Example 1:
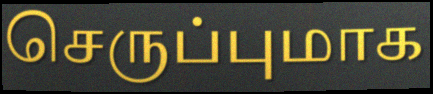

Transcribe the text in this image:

செருப்புமாக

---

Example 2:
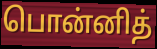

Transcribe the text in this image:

பொன்னித்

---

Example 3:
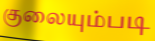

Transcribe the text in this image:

குலையும்படி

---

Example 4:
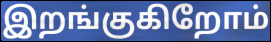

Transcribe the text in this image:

இறங்குகிறோம்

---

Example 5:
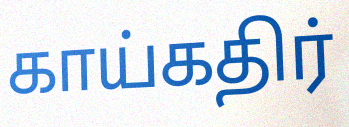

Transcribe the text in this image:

காய்கதிர்